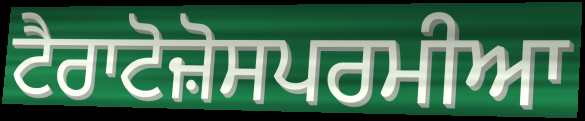
ਟੈਰਾਟੋਜ਼ੋਸਪਰਮੀਆ